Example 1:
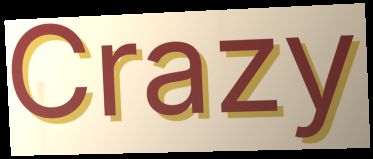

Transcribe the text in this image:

Crazy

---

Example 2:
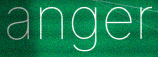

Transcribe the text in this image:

anger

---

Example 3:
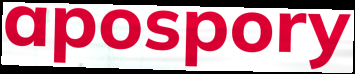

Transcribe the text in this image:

apospory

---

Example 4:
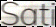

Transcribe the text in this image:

Sati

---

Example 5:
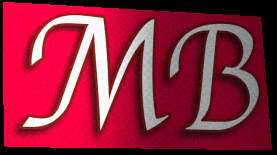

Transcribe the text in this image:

MB